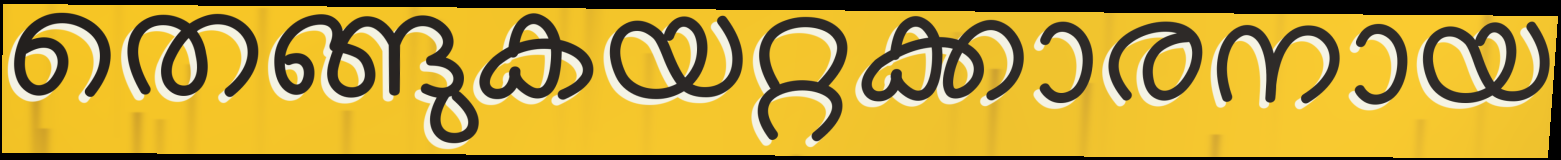
തെങ്ങുകയറ്റക്കാരനായ